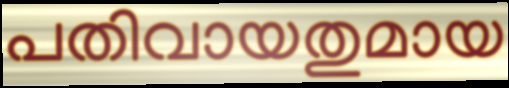
പതിവായതുമായ